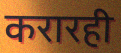
करारही